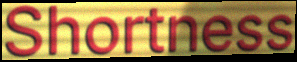
Shortness